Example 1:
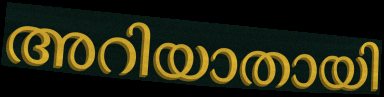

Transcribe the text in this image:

അറിയാതായി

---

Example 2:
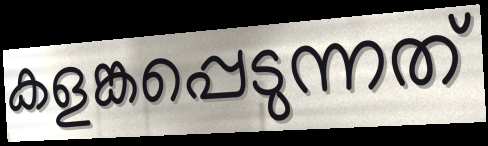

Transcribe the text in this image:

കളങ്കപ്പെടുന്നത്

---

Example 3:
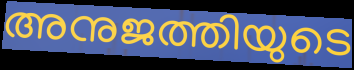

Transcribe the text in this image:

അനുജത്തിയുടെ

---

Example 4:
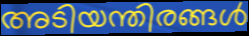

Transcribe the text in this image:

അടിയന്തിരങ്ങൾ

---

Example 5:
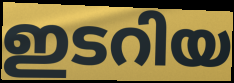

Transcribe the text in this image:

ഇടറിയ